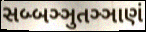
સબ્બઞ્ઞુતઞ્ઞાણં